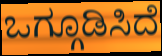
ಒಗ್ಗೂಡಿಸಿದೆ